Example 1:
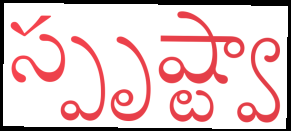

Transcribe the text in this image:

స్పృష్ట్వా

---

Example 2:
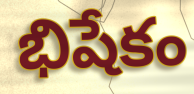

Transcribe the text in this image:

భిషేకం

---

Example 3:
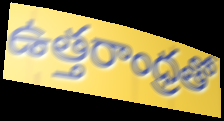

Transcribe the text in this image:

ఉత్తరాంధ్రతో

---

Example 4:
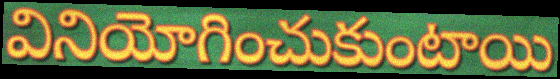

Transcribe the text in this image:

వినియోగించుకుంటాయి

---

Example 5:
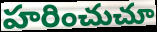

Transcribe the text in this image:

హరించుచూ